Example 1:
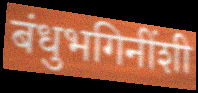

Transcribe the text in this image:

बंधुभगिनींशी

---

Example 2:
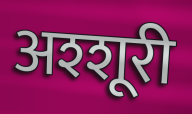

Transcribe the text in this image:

अश्‍शूरी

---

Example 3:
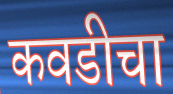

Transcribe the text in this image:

कवडीचा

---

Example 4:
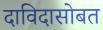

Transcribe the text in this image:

दाविदासोबत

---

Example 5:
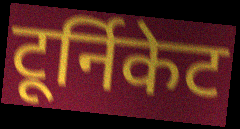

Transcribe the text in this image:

टूर्निकेट